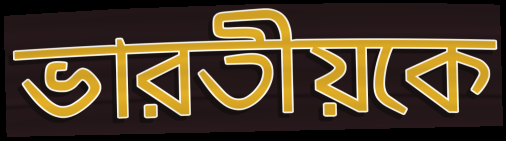
ভারতীয়কে